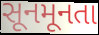
સૂનમૂનતા